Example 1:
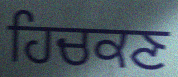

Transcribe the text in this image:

ਹਿਚਕਣ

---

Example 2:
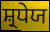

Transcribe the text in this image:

ਸ਼੍ਰਧੇਯ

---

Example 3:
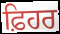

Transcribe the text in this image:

ਫ਼ਿਹਰ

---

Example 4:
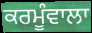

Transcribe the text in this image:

ਕਰਮੂੰਵਾਲਾ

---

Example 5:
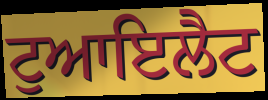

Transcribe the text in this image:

ਟੁਆਇਲੈਟ